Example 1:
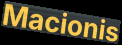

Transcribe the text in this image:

Macionis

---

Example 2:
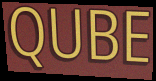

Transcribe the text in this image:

QUBE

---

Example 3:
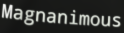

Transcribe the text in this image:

Magnanimous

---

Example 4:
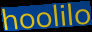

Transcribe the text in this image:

hoolilo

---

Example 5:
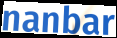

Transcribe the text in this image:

nanbar